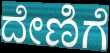
ದೇಣಿಗೆ